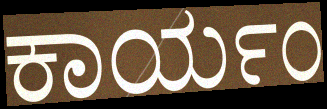
ಕಾರ್ಯಂ